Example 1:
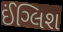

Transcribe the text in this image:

ઈંગ્લિશ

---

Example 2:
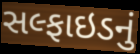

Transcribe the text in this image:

સલ્ફાઇડનું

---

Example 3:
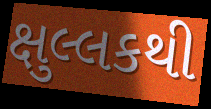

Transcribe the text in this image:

ક્ષુલ્લકથી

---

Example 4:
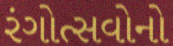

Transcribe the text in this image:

રંગોત્સવોનો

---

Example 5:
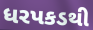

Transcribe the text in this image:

ધરપકડથી